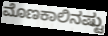
ಮೊಣಕಾಲಿನಷ್ಟು